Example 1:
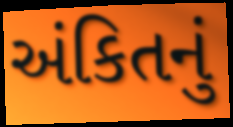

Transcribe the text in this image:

અંકિતનું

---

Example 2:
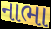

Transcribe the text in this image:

નાભા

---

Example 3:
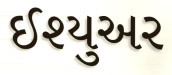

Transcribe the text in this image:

ઈશ્યુઅર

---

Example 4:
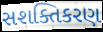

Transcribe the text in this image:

સશક્તિકરણ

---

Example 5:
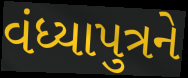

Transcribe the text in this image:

વંધ્યાપુત્રને